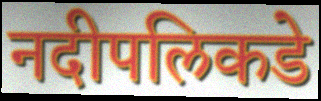
नदीपलिकडे